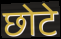
छोटे